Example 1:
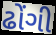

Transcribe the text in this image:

ઢોંગી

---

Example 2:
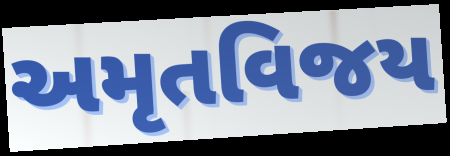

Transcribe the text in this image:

અમૃતવિજય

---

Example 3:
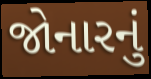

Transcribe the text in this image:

જોનારનું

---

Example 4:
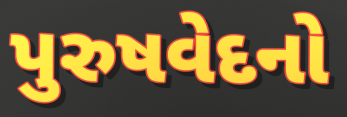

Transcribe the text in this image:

પુરુષવેદનો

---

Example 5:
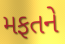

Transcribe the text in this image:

મફતને